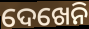
ଦେଖେନି